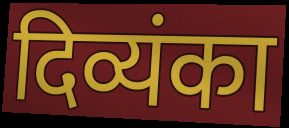
दिव्यंका